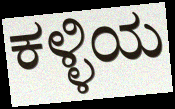
ಕಳ್ಳಿಯ